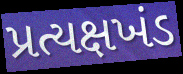
પ્રત્યક્ષખંડ